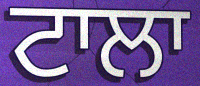
ਟਾਲਾ